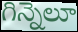
గిన్నెలూ